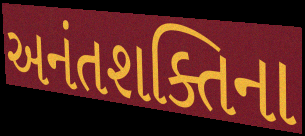
અનંતશક્તિના